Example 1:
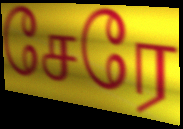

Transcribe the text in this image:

சேரே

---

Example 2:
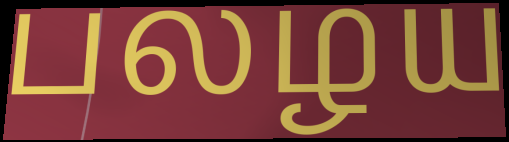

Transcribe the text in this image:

பலழய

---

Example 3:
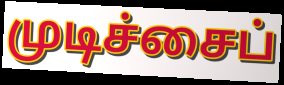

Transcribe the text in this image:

முடிச்சைப்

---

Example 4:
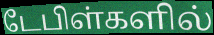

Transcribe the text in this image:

டேபிள்களில்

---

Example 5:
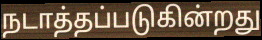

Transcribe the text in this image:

நடாத்தப்படுகின்றது